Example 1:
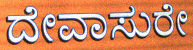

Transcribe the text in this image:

ದೇವಾಸುರೇ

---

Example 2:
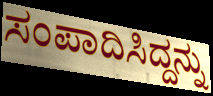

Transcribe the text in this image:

ಸಂಪಾದಿಸಿದ್ದನ್ನು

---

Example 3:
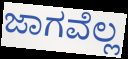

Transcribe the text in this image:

ಜಾಗವೆಲ್ಲ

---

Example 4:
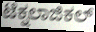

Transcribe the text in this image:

ಟೆಕ್ನಲಾಜಿಕಲ್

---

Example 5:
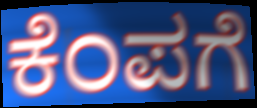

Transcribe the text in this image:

ಕೆಂಪಗೆ